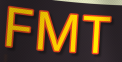
FMT